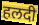
हलदी